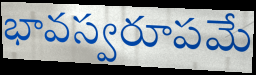
భావస్వరూపమే